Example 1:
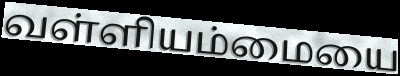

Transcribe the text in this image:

வள்ளியம்மையை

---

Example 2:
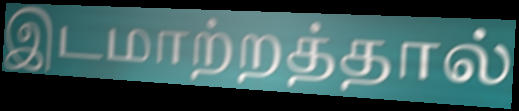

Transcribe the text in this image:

இடமாற்றத்தால்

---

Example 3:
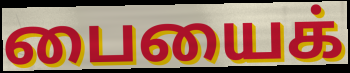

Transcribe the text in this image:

பையைக்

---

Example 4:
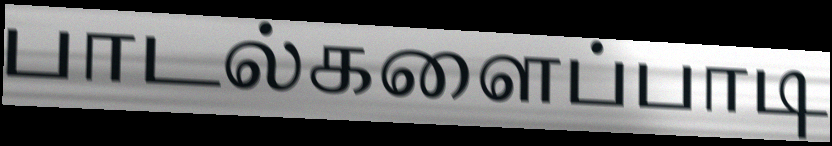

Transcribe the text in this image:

பாடல்களைப்பாடி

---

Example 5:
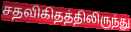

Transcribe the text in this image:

சதவிகிதத்திலிருந்து